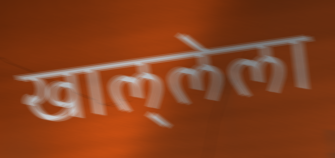
खाल्लेला